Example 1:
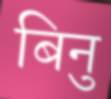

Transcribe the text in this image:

बिनु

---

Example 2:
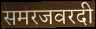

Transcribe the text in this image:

समरजवरदी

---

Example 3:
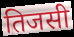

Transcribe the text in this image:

तिजसी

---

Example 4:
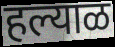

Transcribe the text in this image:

हल्याळ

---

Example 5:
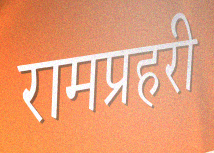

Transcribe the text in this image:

रामप्रहरी